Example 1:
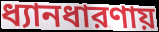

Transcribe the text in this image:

ধ্যানধারণায়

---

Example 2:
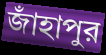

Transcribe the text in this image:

জাঁহাপুর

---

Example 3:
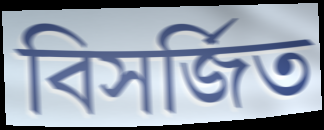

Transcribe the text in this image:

বিসর্জিত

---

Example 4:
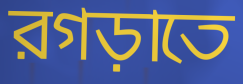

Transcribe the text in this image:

রগড়াতে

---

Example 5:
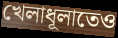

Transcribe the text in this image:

খেলাধূলাতেও